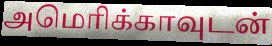
அமெரிக்காவுடன்